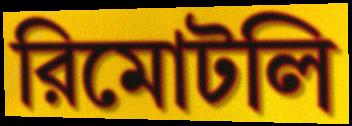
রিমোটলি